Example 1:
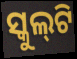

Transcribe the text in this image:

ସ୍କୁଲ୍‌ଟି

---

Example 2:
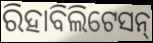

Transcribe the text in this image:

ରିହାବିଲିଟେସନ୍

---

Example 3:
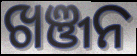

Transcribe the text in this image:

ଖଞ୍ଜନ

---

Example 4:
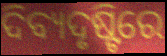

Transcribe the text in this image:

ଦିବ୍ୟଦୃଷ୍ଟିରେ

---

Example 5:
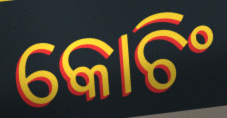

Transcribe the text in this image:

କୋଚିଂ